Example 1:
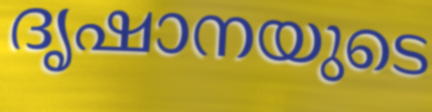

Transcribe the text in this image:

ദൃഷാനയുടെ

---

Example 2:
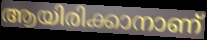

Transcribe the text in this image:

ആയിരിക്കാനാണ്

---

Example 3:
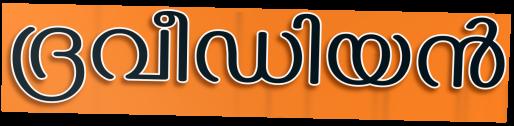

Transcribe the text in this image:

ദ്രവീഡിയൻ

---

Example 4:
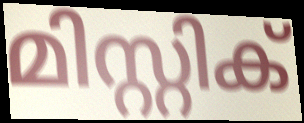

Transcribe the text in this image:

മിസ്റ്റിക്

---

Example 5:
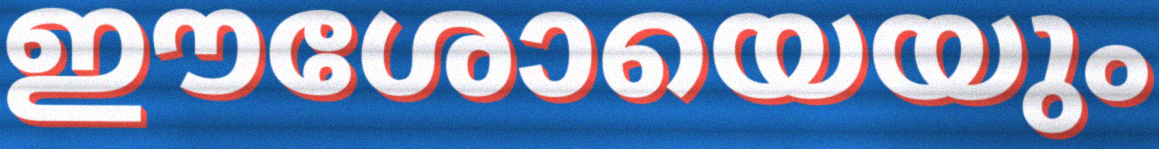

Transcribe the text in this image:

ഈശോയെയും